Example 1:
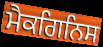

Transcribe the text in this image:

ਮੈਕਗਿਨਿਸ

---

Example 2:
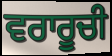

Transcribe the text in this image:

ਵਰਾਰੂਚੀ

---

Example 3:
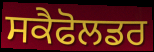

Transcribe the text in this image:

ਸਕੈਫੋਲਡਰ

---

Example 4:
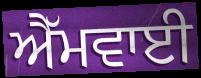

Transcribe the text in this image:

ਐੱਮਵਾਈ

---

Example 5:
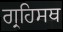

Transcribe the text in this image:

ਗ੍ਰਹਿਸਥ